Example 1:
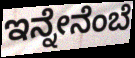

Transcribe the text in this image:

ಇನ್ನೇನೆಂಬೆ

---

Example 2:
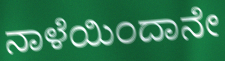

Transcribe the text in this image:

ನಾಳೆಯಿಂದಾನೇ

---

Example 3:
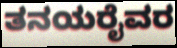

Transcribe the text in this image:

ತನಯರೈವರ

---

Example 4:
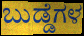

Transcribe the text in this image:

ಬುಡ್ಡೆಗಳ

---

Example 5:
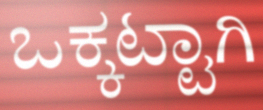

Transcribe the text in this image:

ಒಕ್ಕಟ್ಟಾಗಿ